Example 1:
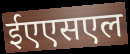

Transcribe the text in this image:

ईएएसएल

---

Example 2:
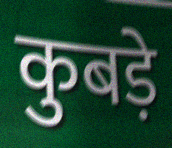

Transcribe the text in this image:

कुबड़े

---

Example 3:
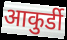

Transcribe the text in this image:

आकुर्डी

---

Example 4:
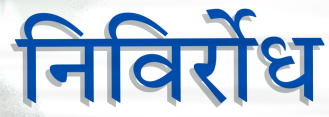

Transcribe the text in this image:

निविर्रोध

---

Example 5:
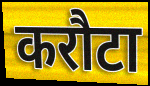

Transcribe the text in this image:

करौटा